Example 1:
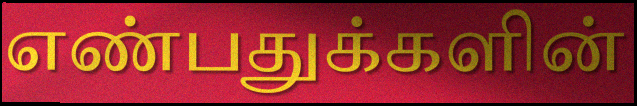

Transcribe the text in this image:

எண்பதுக்களின்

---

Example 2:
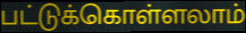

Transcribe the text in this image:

பட்டுக்கொள்ளலாம்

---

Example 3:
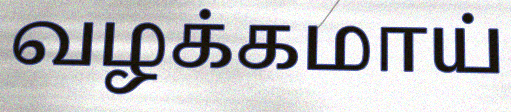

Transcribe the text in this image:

வழக்கமாய்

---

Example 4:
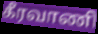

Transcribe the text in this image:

கீரவாணி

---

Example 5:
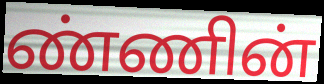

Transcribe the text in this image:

ண்ணின்